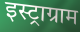
इस्ट्राग्राम